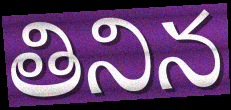
తినిన